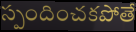
స్పందించకపోతే